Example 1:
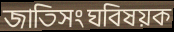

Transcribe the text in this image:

জাতিসংঘবিষয়ক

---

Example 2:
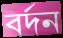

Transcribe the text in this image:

বর্দন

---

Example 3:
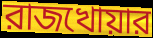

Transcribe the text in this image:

রাজখোয়ার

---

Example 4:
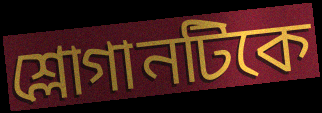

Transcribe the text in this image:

শ্লোগানটিকে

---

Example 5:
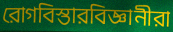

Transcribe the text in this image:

রোগবিস্তারবিজ্ঞানীরা